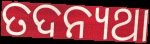
ତଦନ୍ୟଥା